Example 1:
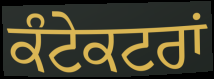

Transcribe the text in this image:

ਕੰਟੇਕਟਰਾਂ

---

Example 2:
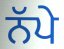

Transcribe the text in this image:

ਨੱਪੇ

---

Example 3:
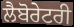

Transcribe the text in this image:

ਲੈਬੋਰੇਟਰੀ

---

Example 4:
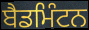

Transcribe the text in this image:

ਬੈਡਮਿੰਟਨ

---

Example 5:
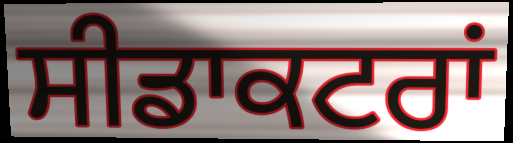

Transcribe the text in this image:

ਸੀਡਾਕਟਰਾਂ